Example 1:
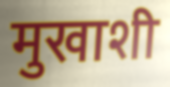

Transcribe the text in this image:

मुखाशी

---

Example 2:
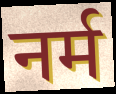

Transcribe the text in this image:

नर्म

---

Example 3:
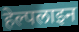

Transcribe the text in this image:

हेल्पलाइन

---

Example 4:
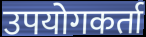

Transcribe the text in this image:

उपयोगकर्ता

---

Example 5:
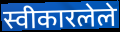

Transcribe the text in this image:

स्वीकारलेले